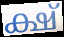
ക്ഷ്